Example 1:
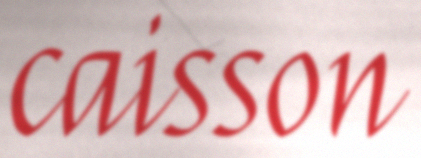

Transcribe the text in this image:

caisson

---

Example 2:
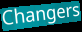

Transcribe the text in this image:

Changers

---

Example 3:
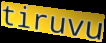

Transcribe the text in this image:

tiruvu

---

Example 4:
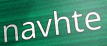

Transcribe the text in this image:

navhte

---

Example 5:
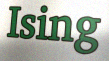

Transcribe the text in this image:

Ising